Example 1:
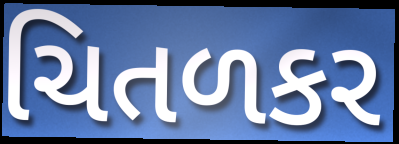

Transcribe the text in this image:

ચિતળકર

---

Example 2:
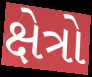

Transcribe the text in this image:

ક્ષેત્રો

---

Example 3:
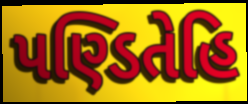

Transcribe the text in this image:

પણ્ડિતેહિ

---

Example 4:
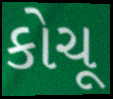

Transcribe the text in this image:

કોચૂ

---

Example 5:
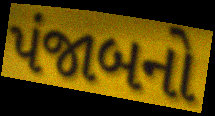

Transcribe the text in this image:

પંજાબનો